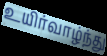
உயிர்வாழ்ந்து